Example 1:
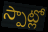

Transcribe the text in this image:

స్పాట్లో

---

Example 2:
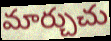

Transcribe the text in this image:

మార్చుచు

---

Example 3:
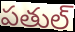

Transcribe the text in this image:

పతుల్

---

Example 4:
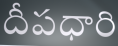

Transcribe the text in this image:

దీపధారి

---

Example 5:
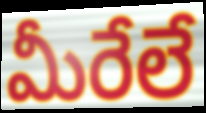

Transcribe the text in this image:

మీరేలే